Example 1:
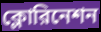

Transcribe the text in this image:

ক্লোরিনেশন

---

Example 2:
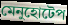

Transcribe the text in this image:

মেনুহোটেপ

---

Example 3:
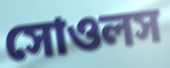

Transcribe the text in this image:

সোওলস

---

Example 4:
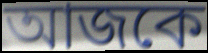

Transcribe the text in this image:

আজকে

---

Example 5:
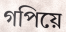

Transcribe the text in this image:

গপিয়ে